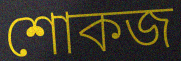
শোকজ